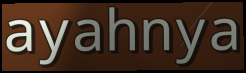
ayahnya